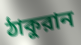
ঠাকুরান